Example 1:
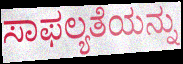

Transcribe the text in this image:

ಸಾಫಲ್ಯತೆಯನ್ನು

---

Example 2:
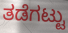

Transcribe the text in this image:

ತಡೆಗಟ್ಟು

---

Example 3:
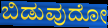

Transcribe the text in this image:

ಬಿಡುವುದೋ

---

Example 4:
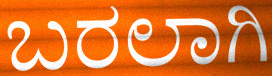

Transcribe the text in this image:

ಬರಲಾಗಿ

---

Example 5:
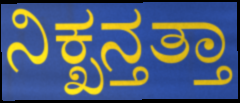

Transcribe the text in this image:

ನಿಕ್ಖನ್ತತ್ತಾ